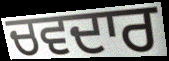
ਚਵਦਾਰ